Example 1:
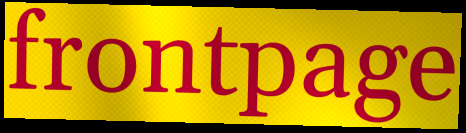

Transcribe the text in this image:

frontpage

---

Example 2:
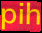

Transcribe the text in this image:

pih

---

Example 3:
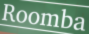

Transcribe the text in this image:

Roomba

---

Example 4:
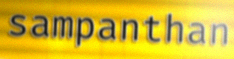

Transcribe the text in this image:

sampanthan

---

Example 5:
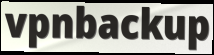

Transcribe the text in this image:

vpnbackup